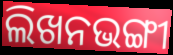
ଲିଖନଭଙ୍ଗୀ